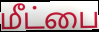
மீட்பை